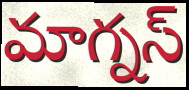
మాగ్నస్